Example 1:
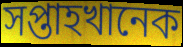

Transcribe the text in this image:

সপ্তাহখানেক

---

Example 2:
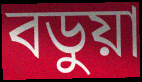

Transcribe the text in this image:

বডুয়া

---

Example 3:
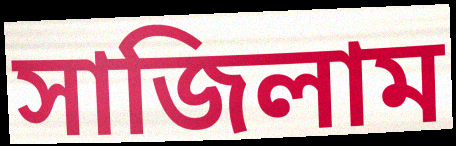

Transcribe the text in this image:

সাজিলাম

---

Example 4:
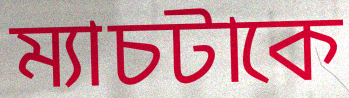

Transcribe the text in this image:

ম্যাচটাকে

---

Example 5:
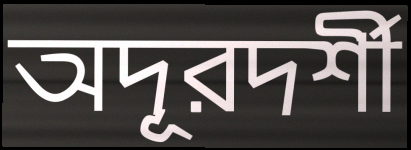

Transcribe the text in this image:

অদূরদর্শী